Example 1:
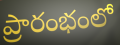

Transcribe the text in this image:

ప్రారంభంలో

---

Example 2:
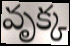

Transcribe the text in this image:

వృక్క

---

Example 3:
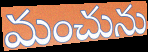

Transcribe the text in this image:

మంచును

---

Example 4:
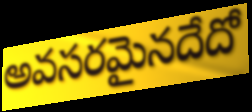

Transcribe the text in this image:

అవసరమైనదేదో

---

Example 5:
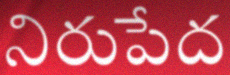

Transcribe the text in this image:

నిరుపేద